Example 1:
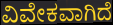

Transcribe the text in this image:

ವಿವೇಕವಾಗಿದೆ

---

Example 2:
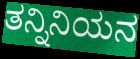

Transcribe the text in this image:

ತನ್ನಿನಿಯನ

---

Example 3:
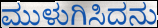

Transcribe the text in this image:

ಮುಳುಗಿಸಿದನು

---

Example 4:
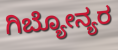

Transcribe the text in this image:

ಗಿಬ್ಯೋನ್ಯರ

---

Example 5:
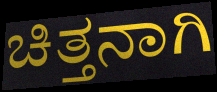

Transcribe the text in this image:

ಚಿತ್ತನಾಗಿ